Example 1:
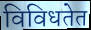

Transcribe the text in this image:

विविधतेत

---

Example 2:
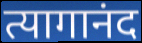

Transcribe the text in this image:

त्यागानंद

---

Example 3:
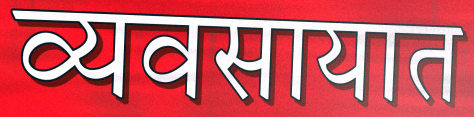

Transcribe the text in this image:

व्यवसायात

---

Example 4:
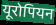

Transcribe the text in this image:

यूरोपियन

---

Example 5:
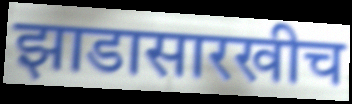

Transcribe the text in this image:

झाडासारखीच